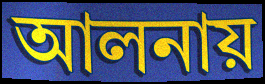
আলনায়